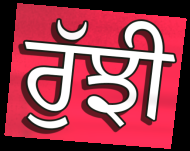
ਰੁੱਝੀ